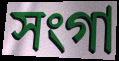
সংগা